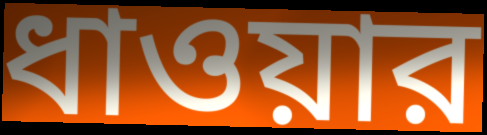
ধাওয়ার